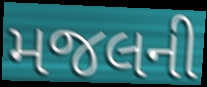
મજલની